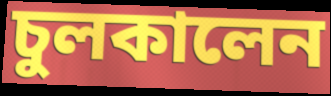
চুলকালেন